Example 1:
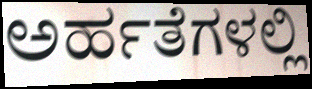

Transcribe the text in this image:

ಅರ್ಹತೆಗಳಲ್ಲಿ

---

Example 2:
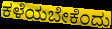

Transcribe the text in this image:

ಕಳೆಯಬೇಕೆಂದು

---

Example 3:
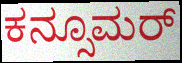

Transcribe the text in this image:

ಕನ್ಸೂಮರ್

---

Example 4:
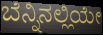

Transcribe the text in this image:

ಬೆನ್ನಿನಲ್ಲಿಯೇ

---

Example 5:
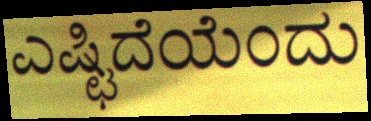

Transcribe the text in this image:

ಎಷ್ಟಿದೆಯೆಂದು